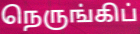
நெருங்கிப்